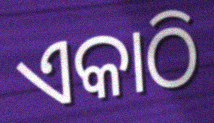
ଏକାଠି